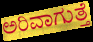
ಅರಿವಾಗುತ್ತೆ